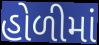
હોળીમાં